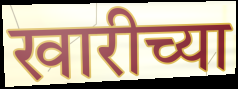
खारीच्या